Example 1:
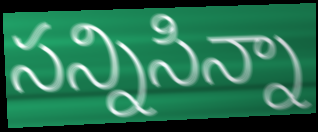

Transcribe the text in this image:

సన్నిసిన్నా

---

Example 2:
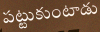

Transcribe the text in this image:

పట్టుకుంటాడు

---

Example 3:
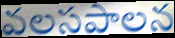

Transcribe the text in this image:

వలసపాలన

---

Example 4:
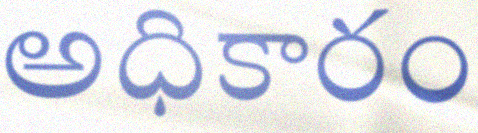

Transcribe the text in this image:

అధికారం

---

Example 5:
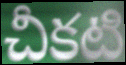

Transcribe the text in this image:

చీకటి